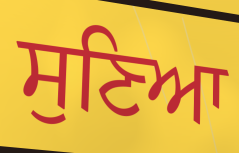
ਸੁਣਿਆ